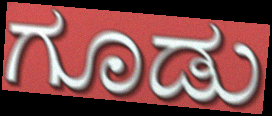
ಗೂಡು